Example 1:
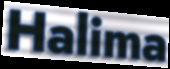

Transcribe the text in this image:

Halima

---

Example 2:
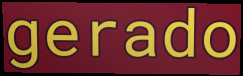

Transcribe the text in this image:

gerado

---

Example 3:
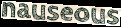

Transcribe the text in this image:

nauseous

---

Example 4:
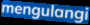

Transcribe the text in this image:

mengulangi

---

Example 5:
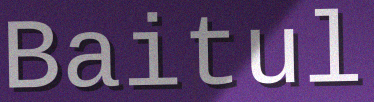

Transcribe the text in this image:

Baitul